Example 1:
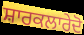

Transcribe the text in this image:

ਸ਼ਾਰਕਲਾਰੇਦੋ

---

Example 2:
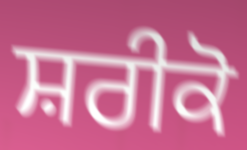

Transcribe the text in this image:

ਸ਼ਰੀਕੋ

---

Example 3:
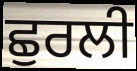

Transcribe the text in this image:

ਛੁਰਲੀ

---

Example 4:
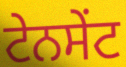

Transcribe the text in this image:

ਟੇਨਸੇਂਟ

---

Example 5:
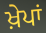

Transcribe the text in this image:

ਖ਼ੇਪਾਂ